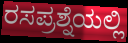
ರಸಪ್ರಶ್ನೆಯಲ್ಲಿ